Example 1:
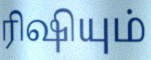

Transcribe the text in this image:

ரிஷியும்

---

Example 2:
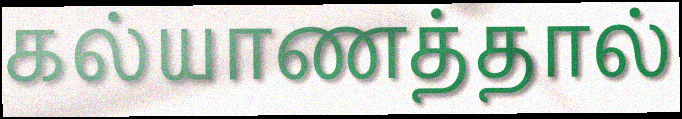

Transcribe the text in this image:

கல்யாணத்தால்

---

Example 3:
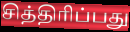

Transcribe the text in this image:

சித்திரிப்பது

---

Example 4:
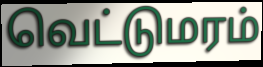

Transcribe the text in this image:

வெட்டுமரம்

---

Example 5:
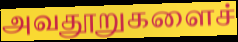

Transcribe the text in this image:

அவதூறுகளைச்